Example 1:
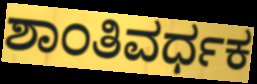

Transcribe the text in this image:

ಶಾಂತಿವರ್ಧಕ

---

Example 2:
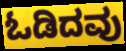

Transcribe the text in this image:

ಓಡಿದವು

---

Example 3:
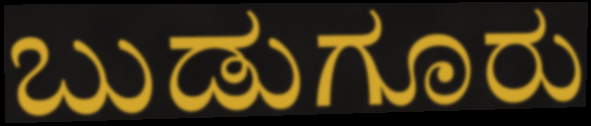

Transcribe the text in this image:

ಬುಡುಗೂರು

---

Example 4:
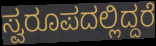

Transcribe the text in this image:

ಸ್ವರೂಪದಲ್ಲಿದ್ದರೆ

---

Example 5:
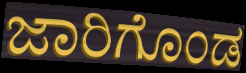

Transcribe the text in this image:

ಜಾರಿಗೊಂಡ